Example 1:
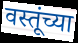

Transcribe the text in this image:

वस्तूंच्या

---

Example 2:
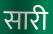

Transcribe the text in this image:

सारी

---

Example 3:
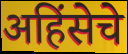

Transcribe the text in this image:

अहिंसेचे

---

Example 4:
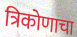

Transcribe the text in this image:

त्रिकोणाचा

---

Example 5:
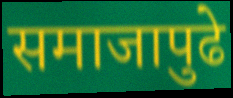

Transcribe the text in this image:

समाजापुढे